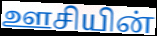
ஊசியின்